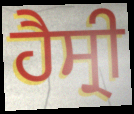
ਹੈਸ੍ਰੀ